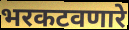
भरकटवणारे